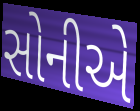
સોનીએ